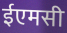
ईएमसी